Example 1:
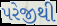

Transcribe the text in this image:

પરેજીથી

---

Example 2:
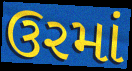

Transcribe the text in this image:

ઉરમાં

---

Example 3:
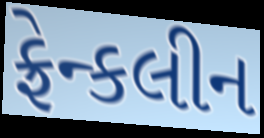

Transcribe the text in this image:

ફ્રેન્કલીન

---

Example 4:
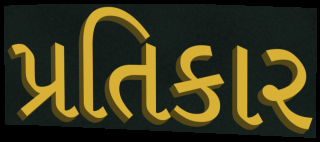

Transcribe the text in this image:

પ્રતિકાર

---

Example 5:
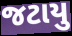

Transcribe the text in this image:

જટાયુ